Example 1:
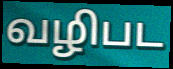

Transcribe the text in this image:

வழிபட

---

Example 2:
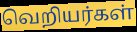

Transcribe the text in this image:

வெறியர்கள்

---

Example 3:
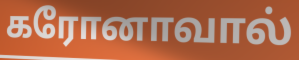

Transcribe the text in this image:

கரோனாவால்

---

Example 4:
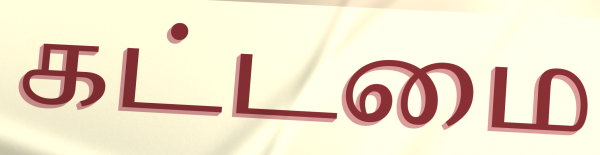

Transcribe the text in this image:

கட்டமை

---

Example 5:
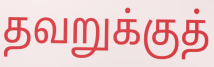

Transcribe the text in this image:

தவறுக்குத்